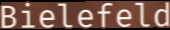
Bielefeld